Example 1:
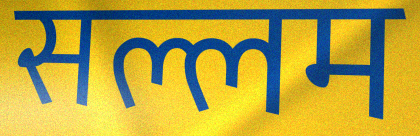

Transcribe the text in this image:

सल्लम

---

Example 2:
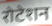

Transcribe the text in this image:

रोटेशन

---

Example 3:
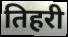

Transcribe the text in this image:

तिहरी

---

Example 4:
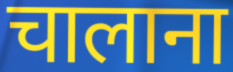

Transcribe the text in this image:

चालाना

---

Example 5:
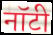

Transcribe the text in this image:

नॉटी